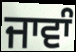
ਜਾਵਾੰ